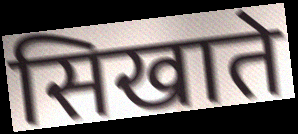
सिखाते